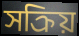
সক্রিয়